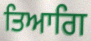
ਤਿਆਗਿ